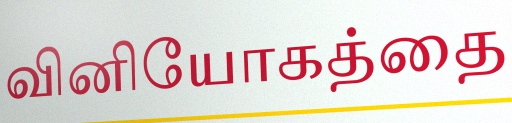
வினியோகத்தை